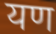
यण